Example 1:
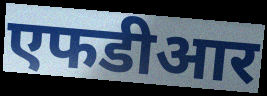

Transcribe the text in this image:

एफडीआर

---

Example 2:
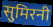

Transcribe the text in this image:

सुमिरनी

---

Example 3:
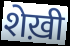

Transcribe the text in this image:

शेख़ी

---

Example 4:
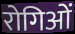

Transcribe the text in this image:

रोगिओं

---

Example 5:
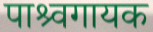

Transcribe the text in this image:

पाश्र्वगायक